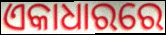
ଏକାଧାରରେ